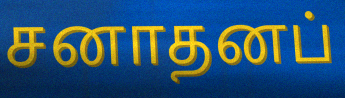
சனாதனப்